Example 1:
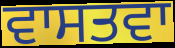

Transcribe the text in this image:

ਵਾਸਤਵਾ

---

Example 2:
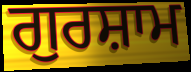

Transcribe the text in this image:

ਗੁਰਸ਼ਾਮ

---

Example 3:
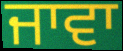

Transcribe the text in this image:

ਜਾਵਾ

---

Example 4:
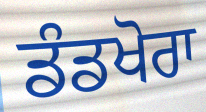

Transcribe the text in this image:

ਡੰਡਖੋਰਾ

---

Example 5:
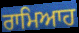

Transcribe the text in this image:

ਰਾਮਿਆਹ